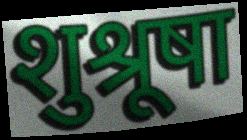
शुश्रूषा